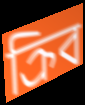
ক্রিব